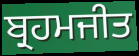
ਬ੍ਰਹਮਜੀਤ